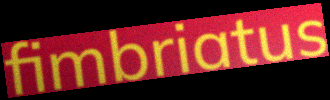
fimbriatus